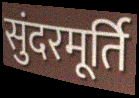
सुंदरमूर्ति